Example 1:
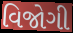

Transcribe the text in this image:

વિજોગી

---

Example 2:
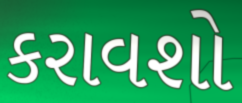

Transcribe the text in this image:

કરાવશો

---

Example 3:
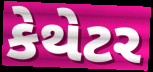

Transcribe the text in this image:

કેથેટર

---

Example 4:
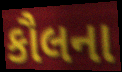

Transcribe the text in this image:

કૌલના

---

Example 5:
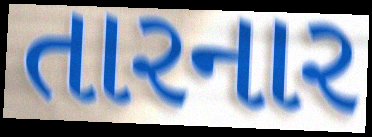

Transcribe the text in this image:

તારનાર